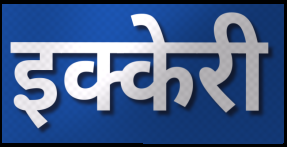
इक्केरी